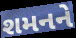
શમનને